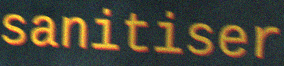
sanitiser